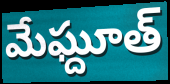
మేఘ్దూత్